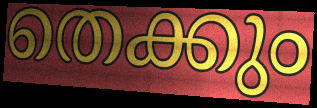
തെക്കും